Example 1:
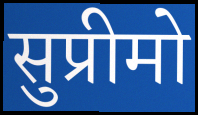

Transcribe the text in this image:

सुप्रीमो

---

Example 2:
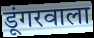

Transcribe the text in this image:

डूंगरवाला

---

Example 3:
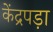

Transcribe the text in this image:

केंद्रपड़ा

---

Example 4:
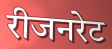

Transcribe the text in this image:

रीजनरेट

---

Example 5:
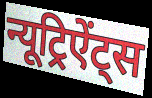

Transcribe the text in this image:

न्यूट्रिऐंट्स